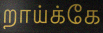
றாய்க்கே